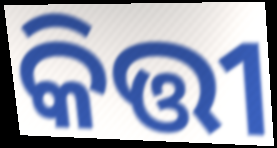
କିତ୍ତୀ